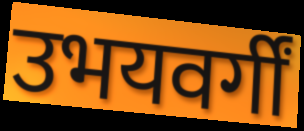
उभयवर्गीं